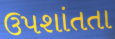
ઉપશાંતતા